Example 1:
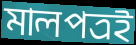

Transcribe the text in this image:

মালপত্রই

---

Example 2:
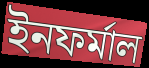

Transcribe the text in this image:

ইনফর্মাল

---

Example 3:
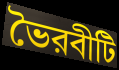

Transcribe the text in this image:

ভৈরবীটি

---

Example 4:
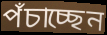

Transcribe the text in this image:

পঁচাচ্ছেন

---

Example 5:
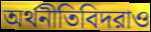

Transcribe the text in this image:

অর্থনীতিবিদরাও